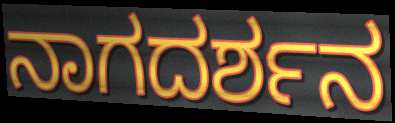
ನಾಗದರ್ಶನ